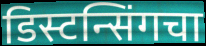
डिस्टन्सिंगचा